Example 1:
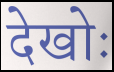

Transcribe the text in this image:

देखोः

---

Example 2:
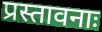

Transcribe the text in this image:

प्रस्तावनाः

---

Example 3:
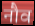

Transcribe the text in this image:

नौव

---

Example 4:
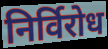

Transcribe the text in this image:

निर्विरोध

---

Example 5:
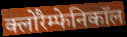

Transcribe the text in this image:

क्लोरैम्फेनिकॉल